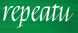
repeatu